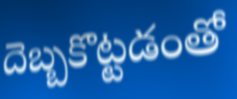
దెబ్బకొట్టడంతో